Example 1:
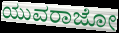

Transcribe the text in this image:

ಯುವರಾಜೋ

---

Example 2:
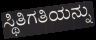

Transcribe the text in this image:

ಸ್ಥಿತಿಗತಿಯನ್ನು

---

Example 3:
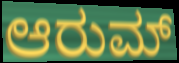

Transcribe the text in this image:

ಆರುಮ್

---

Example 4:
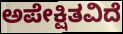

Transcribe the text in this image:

ಅಪೇಕ್ಷಿತವಿದೆ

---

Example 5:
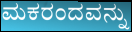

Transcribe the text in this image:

ಮಕರಂದವನ್ನು